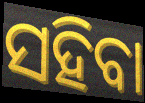
ସହିବା